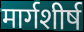
मार्गशीर्ष